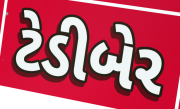
ટેડીબેર